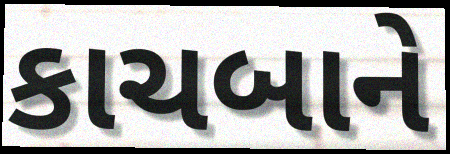
કાચબાને